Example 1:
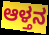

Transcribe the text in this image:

ಆಳ್ತನ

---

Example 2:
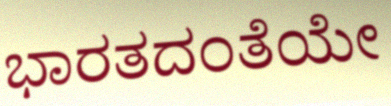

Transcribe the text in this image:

ಭಾರತದಂತೆಯೇ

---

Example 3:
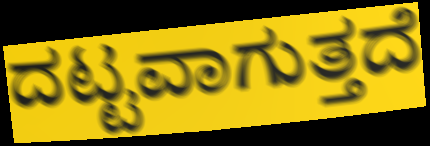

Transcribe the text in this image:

ದಟ್ಟವಾಗುತ್ತದೆ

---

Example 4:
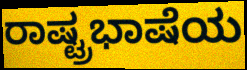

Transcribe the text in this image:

ರಾಷ್ಟ್ರಭಾಷೆಯ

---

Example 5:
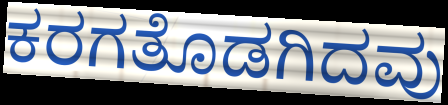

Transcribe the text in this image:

ಕರಗತೊಡಗಿದವು